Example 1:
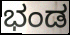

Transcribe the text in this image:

ಭಂಡ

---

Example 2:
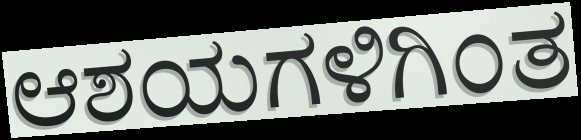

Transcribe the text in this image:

ಆಶಯಗಳಿಗಿಂತ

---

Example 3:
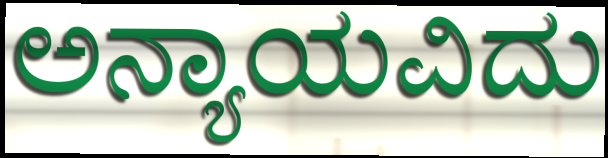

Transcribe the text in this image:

ಅನ್ಯಾಯವಿದು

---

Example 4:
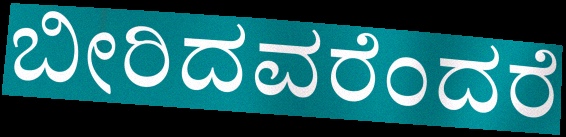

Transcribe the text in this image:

ಬೀರಿದವರೆಂದರೆ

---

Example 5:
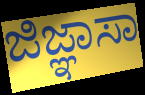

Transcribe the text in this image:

ಜಿಜ್ಞಾಸಾ